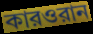
কারওরান